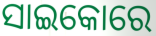
ସାଇକୋରେ